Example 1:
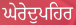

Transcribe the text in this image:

ਘੇਰੇਦੁਪਹਿਰ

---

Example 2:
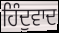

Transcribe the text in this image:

ਹਿੰਦੁਵਾਦ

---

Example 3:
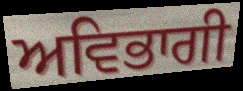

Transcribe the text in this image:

ਅਵਿਭਾਗੀ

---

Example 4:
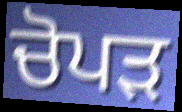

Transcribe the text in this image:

ਚੋਪੜ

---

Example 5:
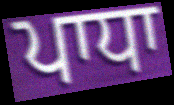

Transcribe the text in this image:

ਪਾਧਾ